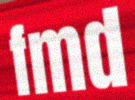
fmd